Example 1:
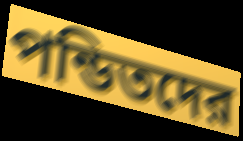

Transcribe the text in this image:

পন্ডিতদের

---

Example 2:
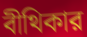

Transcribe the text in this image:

বীথিকার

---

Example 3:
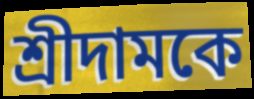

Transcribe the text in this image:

শ্রীদামকে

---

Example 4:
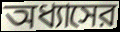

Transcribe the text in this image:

অধ্যাসের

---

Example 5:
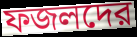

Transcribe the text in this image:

ফজলদের